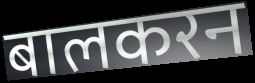
बालकरन